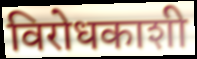
विरोधकाशी